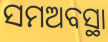
ସମଅବସ୍ଥା